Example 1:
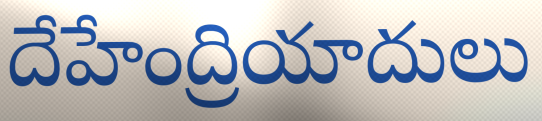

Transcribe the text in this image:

దేహేంద్రియాదులు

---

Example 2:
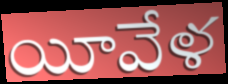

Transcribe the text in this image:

యీవేళ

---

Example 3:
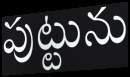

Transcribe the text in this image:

పుట్టును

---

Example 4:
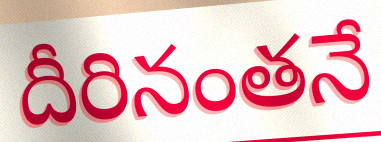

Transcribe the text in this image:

దీరినంతనే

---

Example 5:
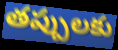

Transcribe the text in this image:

తప్పులకు